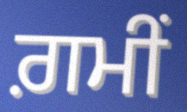
ਗ਼ਮੀਂ